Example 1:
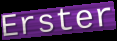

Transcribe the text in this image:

Erster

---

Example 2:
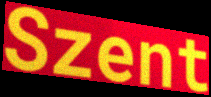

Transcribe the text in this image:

Szent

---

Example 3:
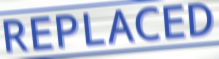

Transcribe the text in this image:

REPLACED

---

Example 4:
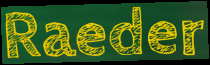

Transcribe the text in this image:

Raeder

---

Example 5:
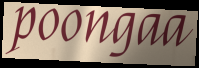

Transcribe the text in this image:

poongaa